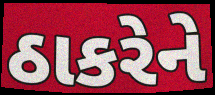
ઠાકરેને